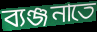
ব্যঞ্জনাতে